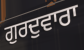
ਗੁਰਦੁਵਾਰਾ